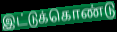
இட்டுக்கொண்டு